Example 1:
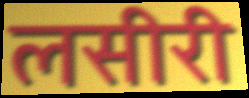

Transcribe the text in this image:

लसीरी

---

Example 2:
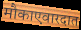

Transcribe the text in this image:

मौकाएवारदात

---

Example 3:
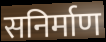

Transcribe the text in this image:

सनिर्माण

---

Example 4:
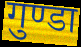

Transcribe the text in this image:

गुण्डा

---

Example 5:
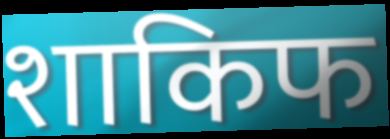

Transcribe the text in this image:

शाकिफ